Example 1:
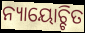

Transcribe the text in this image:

ନ୍ୟାୟୋଚ୍ଚିତ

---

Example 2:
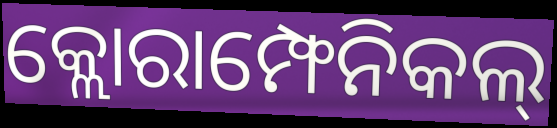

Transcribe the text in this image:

କ୍ଲୋରାମ୍ଫେନିକଲ୍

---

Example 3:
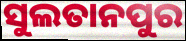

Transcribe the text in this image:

ସୁଲତାନପୁର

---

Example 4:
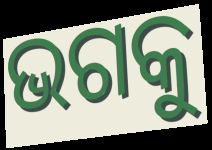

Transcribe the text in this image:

ଭଗକୁ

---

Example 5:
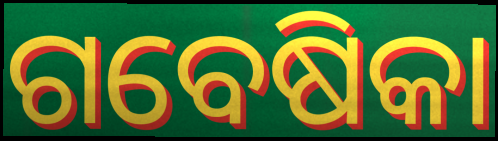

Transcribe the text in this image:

ଗବେଷିକା